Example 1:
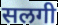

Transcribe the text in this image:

सलगी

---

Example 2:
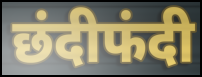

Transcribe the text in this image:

छंदीफंदी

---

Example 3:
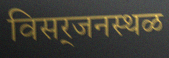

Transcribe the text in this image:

विसर्जनस्थळ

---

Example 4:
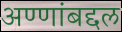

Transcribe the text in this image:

अण्णांबद्दल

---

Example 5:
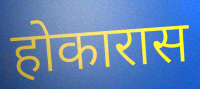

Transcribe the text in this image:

होकारास